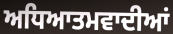
ਅਧਿਆਤਮਵਾਦੀਆਂ